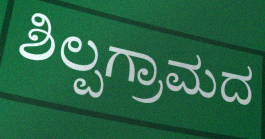
ಶಿಲ್ಪಗ್ರಾಮದ